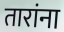
तारांना